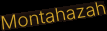
Montahazah